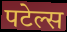
पटेल्स